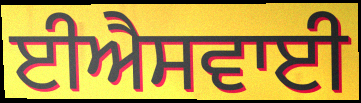
ਈਐਸਵਾਈ